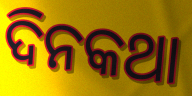
ଦିନକଥା